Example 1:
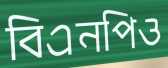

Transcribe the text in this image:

বিএনপিও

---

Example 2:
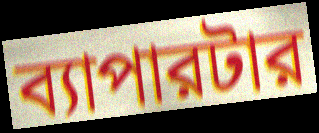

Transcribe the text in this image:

ব্যাপারটার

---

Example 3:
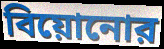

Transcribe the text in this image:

বিয়োনোর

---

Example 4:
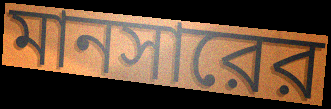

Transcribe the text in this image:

মানসারের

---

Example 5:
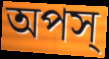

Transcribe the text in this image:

অপস্